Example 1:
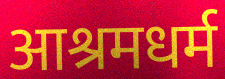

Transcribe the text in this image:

आश्रमधर्म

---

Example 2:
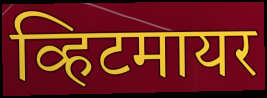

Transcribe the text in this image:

व्हिटमायर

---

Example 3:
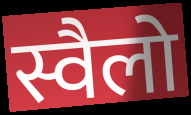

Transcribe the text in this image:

स्वैलो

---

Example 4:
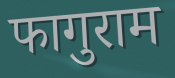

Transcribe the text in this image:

फागुराम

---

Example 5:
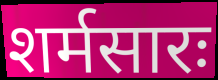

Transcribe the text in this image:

शर्मसारः